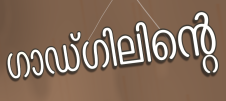
ഗാഡ്ഗിലിന്റെ